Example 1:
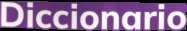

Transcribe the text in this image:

Diccionario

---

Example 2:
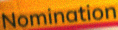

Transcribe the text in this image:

Nomination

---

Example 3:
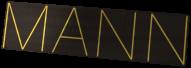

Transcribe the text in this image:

MANN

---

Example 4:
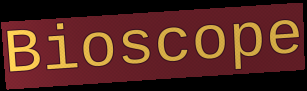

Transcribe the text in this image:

Bioscope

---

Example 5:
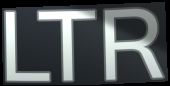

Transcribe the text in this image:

LTR